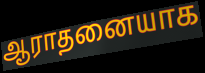
ஆராதனையாக